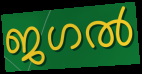
ജഗൽ